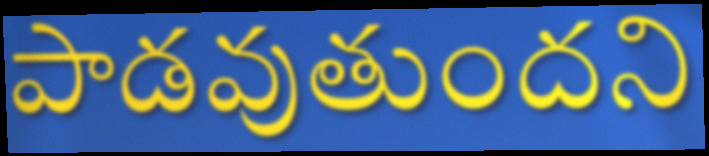
పాడవుతుందని